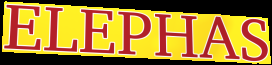
ELEPHAS